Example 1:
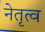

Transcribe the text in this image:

नेतृत्व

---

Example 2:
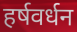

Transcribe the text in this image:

हर्षवर्धन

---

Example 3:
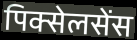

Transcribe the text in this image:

पिक्सेलसेंस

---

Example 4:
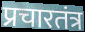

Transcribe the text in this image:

प्रचारतंत्र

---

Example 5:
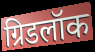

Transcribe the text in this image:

ग्रिडलॉक